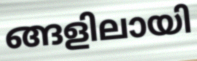
ങ്ങളിലായി